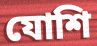
যোশি